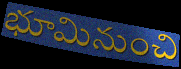
భూమినుంచి